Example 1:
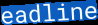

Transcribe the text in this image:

eadline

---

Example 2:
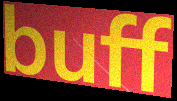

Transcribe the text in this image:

buff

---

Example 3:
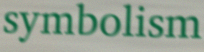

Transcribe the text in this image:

symbolism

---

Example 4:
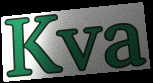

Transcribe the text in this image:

Kva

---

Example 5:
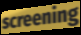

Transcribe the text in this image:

screening